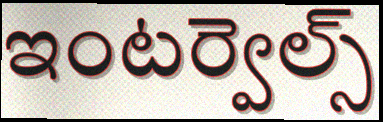
ఇంటర్వెల్స్